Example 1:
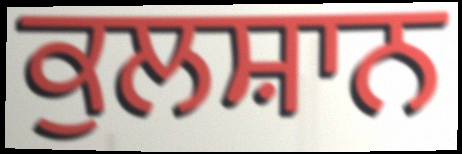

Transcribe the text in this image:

ਕੁਲਸ਼ਾਨ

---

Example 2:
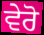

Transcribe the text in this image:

ਵੇਰੋ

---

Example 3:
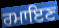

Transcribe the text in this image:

ਰਮਾਇਣ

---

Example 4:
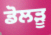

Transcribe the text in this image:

ਡੋਲੜੂ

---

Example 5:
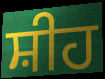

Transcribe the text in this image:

ਸ਼ੀਹ